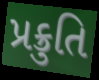
પ્રક્રુતિ